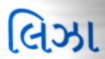
લિઝા